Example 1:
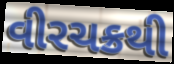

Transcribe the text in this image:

વીરચક્રથી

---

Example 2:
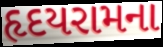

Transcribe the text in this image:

હૃદયરામના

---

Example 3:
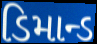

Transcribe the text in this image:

ડિમાન્ડ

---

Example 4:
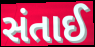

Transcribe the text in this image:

સંતાઈ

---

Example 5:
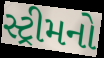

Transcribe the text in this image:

સ્ટ્રીમનો